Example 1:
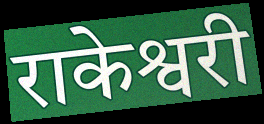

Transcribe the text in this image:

राकेश्वरी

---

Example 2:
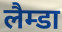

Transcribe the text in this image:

लैम्डा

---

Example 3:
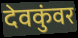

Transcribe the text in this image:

देवकुंवर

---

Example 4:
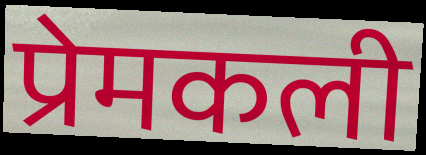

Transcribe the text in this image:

प्रेमकली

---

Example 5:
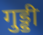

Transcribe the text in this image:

गुड्डी